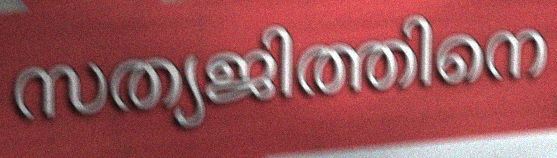
സത്യജിത്തിനെ